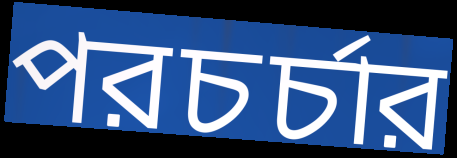
পরচর্চার